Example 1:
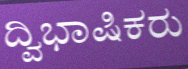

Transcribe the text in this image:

ದ್ವಿಭಾಷಿಕರು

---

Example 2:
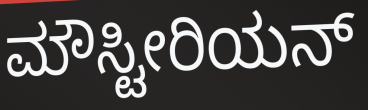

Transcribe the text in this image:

ಮೌಸ್ಟೀರಿಯನ್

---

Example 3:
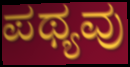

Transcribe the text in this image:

ಪಥ್ಯವು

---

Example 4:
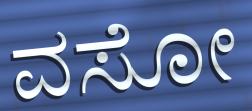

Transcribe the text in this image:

ವಸೋ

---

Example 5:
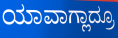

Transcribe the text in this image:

ಯಾವಾಗ್ಲಾದ್ರೂ